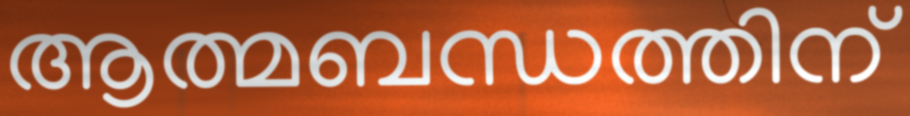
ആത്മബന്ധത്തിന്